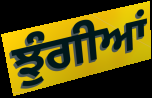
ਝੁੰਗੀਆਂ